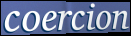
coercion